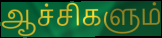
ஆச்சிகளும்